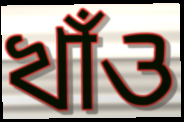
খাঁও